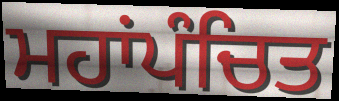
ਮਹਾਂਪੰਚਿਤ